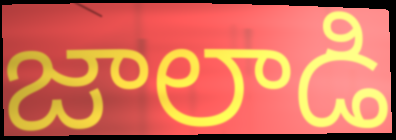
జాలాడి